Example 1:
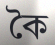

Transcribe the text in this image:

কৈ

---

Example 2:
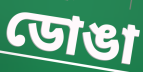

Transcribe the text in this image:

ডোঙা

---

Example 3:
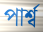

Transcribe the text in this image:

পাৰ্শ্ব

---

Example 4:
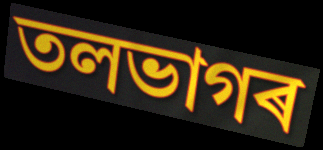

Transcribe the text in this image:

তলভাগৰ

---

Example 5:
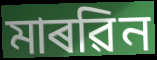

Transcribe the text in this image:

মাৰৱিন